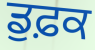
ਡੁਫ਼ਕ